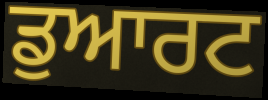
ਡੁਆਰਟ